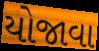
યોજાવા